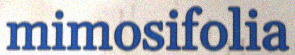
mimosifolia